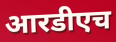
आरडीएच